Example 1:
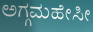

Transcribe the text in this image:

ಅಗ್ಗಮಹೇಸೀ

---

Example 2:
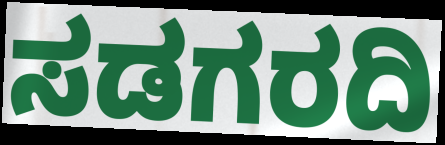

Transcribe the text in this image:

ಸಡಗರದಿ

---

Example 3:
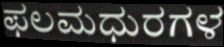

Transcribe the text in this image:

ಫಲಮಧುರಗಳ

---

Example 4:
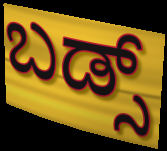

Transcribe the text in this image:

ಬಡ್ಸ್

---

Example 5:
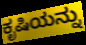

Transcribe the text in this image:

ಕೃಷಿಯನ್ನು